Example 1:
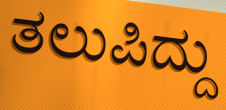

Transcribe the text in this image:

ತಲುಪಿದ್ದು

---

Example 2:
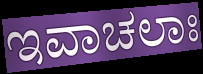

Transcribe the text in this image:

ಇವಾಚಲಾಃ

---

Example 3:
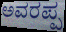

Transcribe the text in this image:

ಅವರಪ್ಪ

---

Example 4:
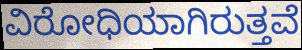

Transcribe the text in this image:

ವಿರೋಧಿಯಾಗಿರುತ್ತವೆ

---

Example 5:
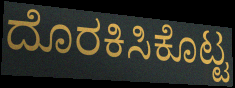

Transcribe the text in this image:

ದೊರಕಿಸಿಕೊಟ್ಟ